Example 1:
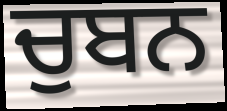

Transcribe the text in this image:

ਚੁਬਨ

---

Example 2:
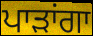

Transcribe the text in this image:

ਪਾੜਾਂਗਾ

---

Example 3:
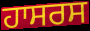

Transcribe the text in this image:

ਹਾਸਰਸ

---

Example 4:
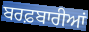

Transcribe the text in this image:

ਬਰਫ਼ਬਾਰੀਆਂ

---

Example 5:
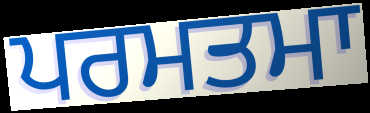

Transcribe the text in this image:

ਪਰਮਤਮਾ